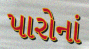
પારોનાં